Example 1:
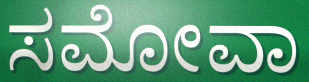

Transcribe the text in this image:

ಸಮೋವಾ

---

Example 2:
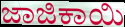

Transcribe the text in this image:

ಜಾಜಿಕಾಯಿ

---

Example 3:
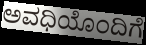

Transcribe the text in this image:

ಅವಧಿಯೊಂದಿಗೆ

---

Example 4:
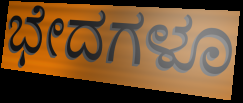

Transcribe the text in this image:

ಭೇದಗಳೂ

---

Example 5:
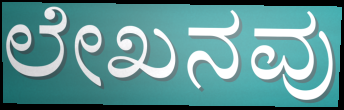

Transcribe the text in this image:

ಲೇಖನವು